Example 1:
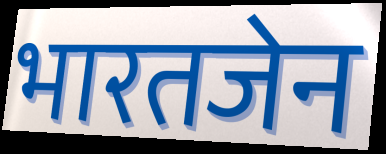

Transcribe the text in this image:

भारतजेन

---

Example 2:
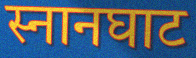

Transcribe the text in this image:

स्नानघाट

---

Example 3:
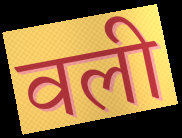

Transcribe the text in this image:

वली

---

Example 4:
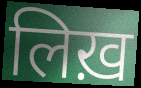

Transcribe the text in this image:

लिख़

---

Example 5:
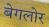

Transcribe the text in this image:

बेगलोर